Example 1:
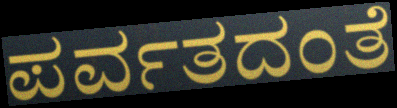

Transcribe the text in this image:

ಪರ್ವತದಂತೆ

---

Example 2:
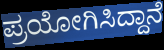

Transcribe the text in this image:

ಪ್ರಯೋಗಿಸಿದ್ದಾನೆ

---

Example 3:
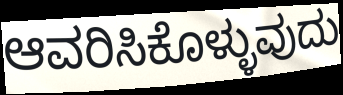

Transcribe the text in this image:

ಆವರಿಸಿಕೊಳ್ಳುವುದು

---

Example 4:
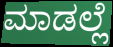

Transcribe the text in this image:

ಮಾಡಲ್ಲೆ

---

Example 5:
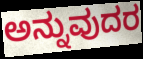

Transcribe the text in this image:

ಅನ್ನುವುದರ